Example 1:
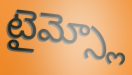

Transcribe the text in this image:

టైమ్స్లో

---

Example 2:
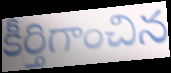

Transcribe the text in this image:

కీర్తిగాంచిన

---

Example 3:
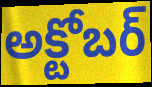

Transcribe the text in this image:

అక్టోబర్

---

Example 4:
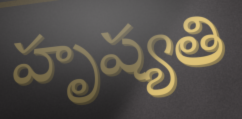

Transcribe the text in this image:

హృష్యతి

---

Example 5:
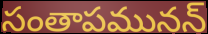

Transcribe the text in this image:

సంతాపమునన్